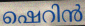
ഷെറിൻ